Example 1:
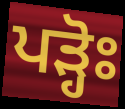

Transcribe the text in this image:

ਪੜ੍ਹੋਃ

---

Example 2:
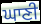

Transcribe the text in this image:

ਘਾਣੀ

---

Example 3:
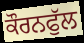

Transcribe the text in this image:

ਕੌਰਨਫੁੱਲ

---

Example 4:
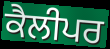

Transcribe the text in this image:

ਕੈਲੀਪਰ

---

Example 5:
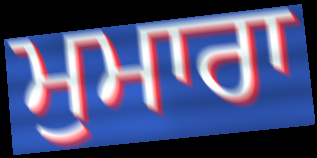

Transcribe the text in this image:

ਮੁਮਾਰਾ